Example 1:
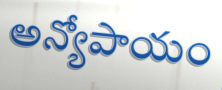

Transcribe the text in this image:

అన్యోపాయం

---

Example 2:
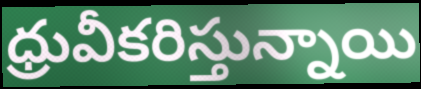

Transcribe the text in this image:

ధ్రువీకరిస్తున్నాయి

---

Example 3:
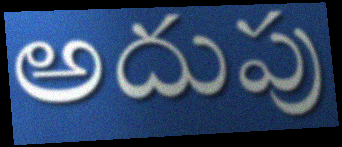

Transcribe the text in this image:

అదుపు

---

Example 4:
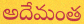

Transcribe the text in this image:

అదేమంత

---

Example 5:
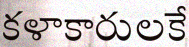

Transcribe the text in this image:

కళాకారులకే